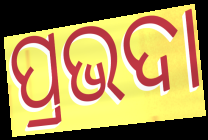
ପ୍ରଭଦା